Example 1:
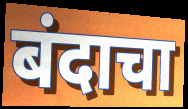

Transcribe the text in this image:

बंदाचा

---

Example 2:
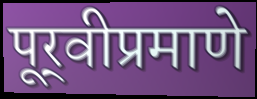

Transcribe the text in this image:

पूर्वीप्रमाणे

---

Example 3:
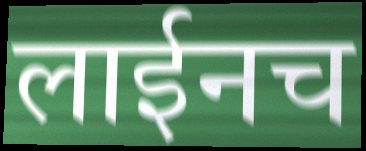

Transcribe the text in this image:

लाईनच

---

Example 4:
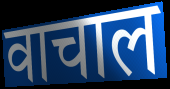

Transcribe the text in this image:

वाचाल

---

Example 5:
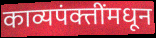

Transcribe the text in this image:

काव्यपंक्तींमधून